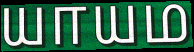
யாயம